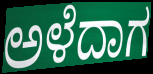
ಅಳೆದಾಗ